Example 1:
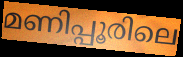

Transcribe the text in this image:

മണിപ്പൂരിലെ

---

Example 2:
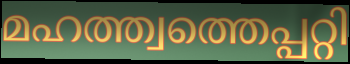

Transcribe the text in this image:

മഹത്ത്വത്തെപ്പറ്റി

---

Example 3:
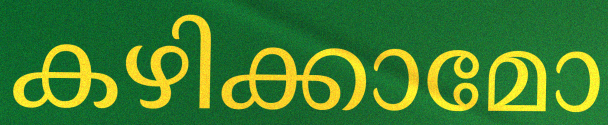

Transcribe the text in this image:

കഴിക്കാമോ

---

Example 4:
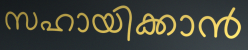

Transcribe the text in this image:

സഹായിക്കാൻ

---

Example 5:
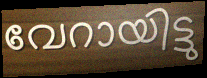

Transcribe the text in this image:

വേറായിട്ടു